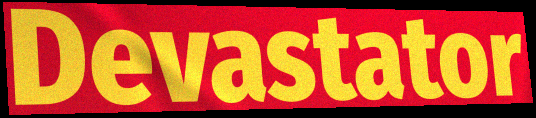
Devastator